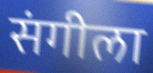
संगीला